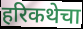
हरिकथेचा